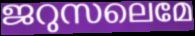
ജറുസലെമേ